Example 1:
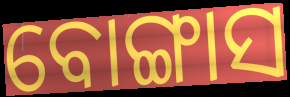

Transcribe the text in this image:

ବୋଙ୍ଗାସ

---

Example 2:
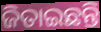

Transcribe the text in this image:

ଜିତାଇଛନ୍ତି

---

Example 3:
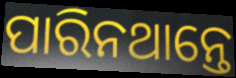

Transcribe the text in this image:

ପାରିନଥାନ୍ତେ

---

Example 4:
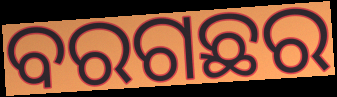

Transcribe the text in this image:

ବରଗଛର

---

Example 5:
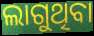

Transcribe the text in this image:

ଲାଗୁଥିବା